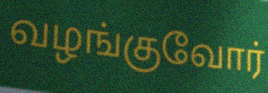
வழங்குவோர்